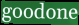
goodone